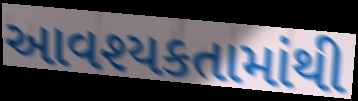
આવશ્યકતામાંથી